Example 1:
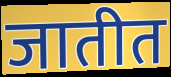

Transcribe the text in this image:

जातीत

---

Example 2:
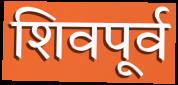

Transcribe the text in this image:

शिवपूर्व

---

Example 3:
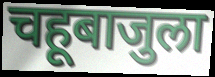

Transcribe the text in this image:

चहूबाजुला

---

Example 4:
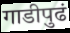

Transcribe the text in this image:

गाडीपुढं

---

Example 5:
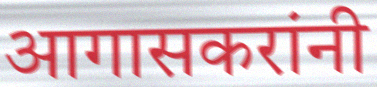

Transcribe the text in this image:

आगासकरांनी